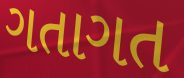
ગતાગત